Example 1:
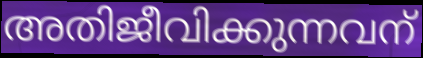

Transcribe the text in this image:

അതിജീവിക്കുന്നവന്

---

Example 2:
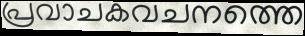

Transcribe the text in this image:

പ്രവാചകവചനത്തെ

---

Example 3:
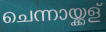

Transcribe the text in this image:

ചെന്നായ്ക്കള്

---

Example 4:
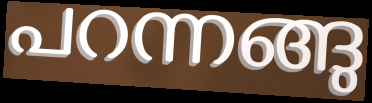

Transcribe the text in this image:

പറന്നങ്ങു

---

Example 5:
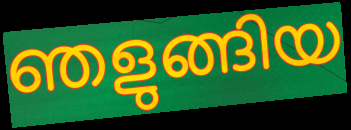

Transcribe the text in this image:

ഞളുങ്ങിയ